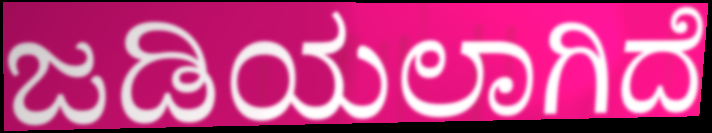
ಜಡಿಯಲಾಗಿದೆ